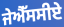
ਜੇਐੱਸਸੀਏ